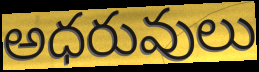
అధరువులు